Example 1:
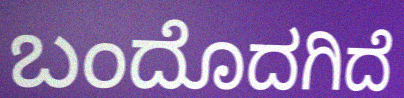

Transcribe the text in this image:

ಬಂದೊದಗಿದೆ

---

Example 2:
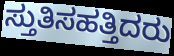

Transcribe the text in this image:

ಸ್ತುತಿಸಹತ್ತಿದರು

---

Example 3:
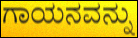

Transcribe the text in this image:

ಗಾಯನವನ್ನು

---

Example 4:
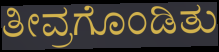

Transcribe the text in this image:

ತೀವ್ರಗೊಂಡಿತು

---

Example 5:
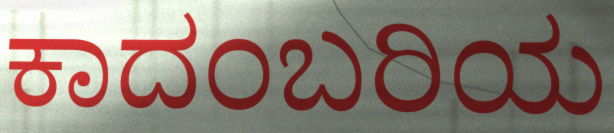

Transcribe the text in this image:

ಕಾದಂಬರಿಯ